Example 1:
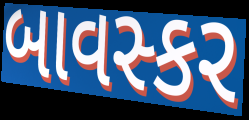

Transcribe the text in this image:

બાવસ્કર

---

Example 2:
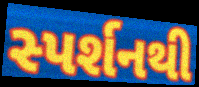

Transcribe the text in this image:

સ્પર્શનથી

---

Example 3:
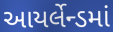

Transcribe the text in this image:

આયર્લેન્ડમાં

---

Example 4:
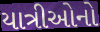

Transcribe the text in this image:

યાત્રીઓનો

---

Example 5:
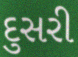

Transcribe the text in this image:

દુસરી